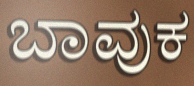
ಬಾವುಕ